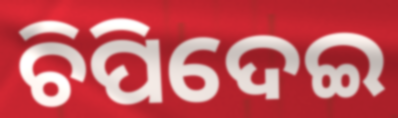
ଚିପିଦେଇ